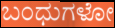
ಬಂಧುಗಳೋ